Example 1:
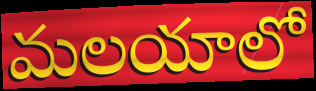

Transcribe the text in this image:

మలయాలో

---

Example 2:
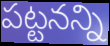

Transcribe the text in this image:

పట్టనన్ని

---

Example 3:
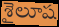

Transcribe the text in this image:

శైలూష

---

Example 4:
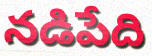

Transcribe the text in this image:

నడిపేది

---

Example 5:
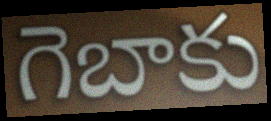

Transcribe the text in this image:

గెబాకు